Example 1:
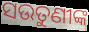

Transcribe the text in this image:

ସଉତୁଣୀଙ୍କ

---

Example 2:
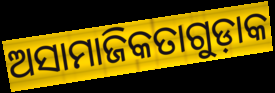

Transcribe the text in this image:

ଅସାମାଜିକତାଗୁଡ଼ାକ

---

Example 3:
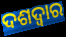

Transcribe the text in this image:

ଦଶଦ୍ୱାର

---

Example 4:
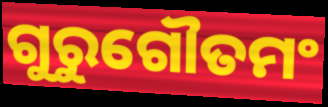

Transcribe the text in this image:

ଗୁରୁଗୌତମଂ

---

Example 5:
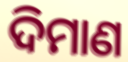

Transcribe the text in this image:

ଦିମାଣ